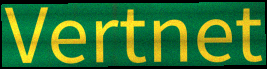
Vertnet